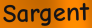
Sargent